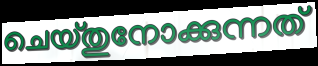
ചെയ്തുനോക്കുന്നത്